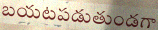
బయటపడుతుండగా